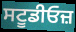
ਸਟੂਡੀਓਜ਼